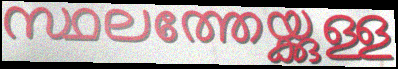
സ്ഥലത്തേയ്ക്കുള്ള